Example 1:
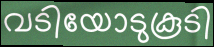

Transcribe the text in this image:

വടിയോടുകൂടി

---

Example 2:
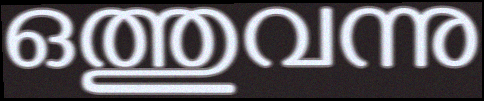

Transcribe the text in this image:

ഒത്തുവന്നു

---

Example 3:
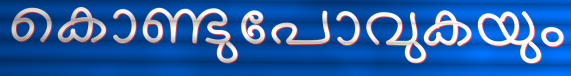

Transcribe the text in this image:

കൊണ്ടുപോവുകയും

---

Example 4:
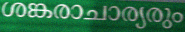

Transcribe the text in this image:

ശങ്കരാചാര്യരും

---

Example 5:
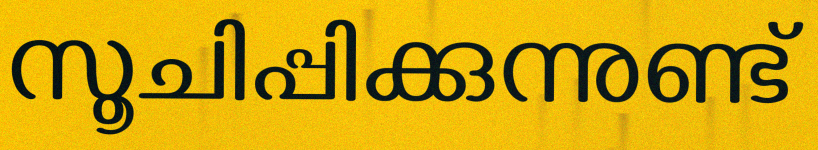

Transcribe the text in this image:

സൂചിപ്പിക്കുന്നുണ്ട്